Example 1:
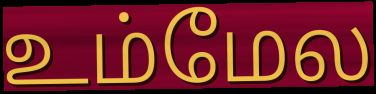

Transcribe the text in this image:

உம்மேல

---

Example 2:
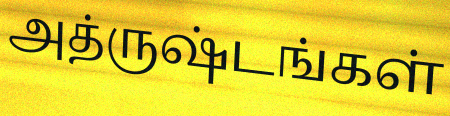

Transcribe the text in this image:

அத்ருஷ்டங்கள்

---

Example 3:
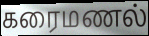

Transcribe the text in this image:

கரைமணல்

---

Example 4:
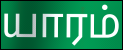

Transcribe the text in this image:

யாரம்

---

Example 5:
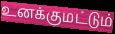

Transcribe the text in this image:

உனக்குமட்டும்